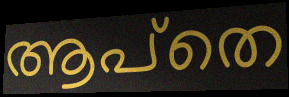
ആപ്‌തെ